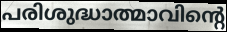
പരിശുദ്ധാത്മാവിന്റെ